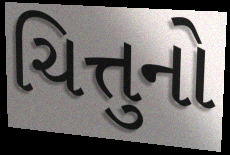
ચિત્તુનો